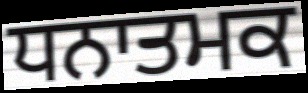
ਧਨਾਤਮਕ